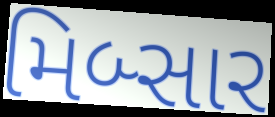
મિબ્સાર